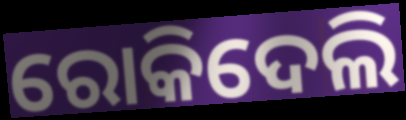
ରୋକିଦେଲି